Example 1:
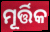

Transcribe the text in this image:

ମୂର୍ତ୍ତିକ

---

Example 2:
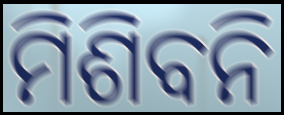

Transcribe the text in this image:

ମିଶିବନି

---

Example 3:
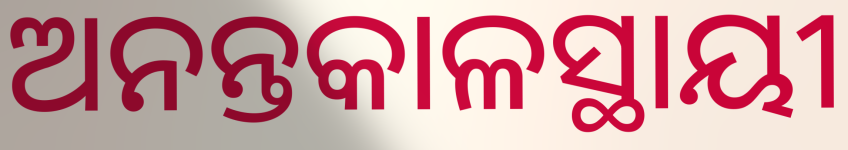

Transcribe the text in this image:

ଅନନ୍ତକାଳସ୍ଥାୟୀ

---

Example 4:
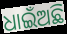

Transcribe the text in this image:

ଧାଇଁଅଛି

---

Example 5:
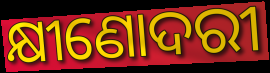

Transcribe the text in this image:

କ୍ଷୀଣୋଦରୀ